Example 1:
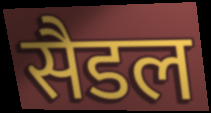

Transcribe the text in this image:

सैडल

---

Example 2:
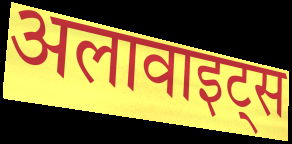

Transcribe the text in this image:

अलावाइट्स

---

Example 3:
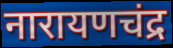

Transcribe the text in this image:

नारायणचंद्र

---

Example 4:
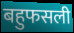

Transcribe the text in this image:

बहुफसली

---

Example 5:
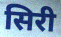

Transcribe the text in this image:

सिरी